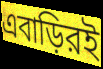
এবাড়িরই